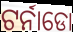
ଟର୍ନାଡୋ